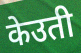
केउती